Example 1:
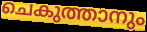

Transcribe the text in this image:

ചെകുത്താനും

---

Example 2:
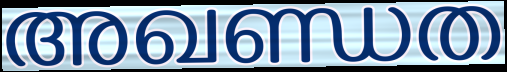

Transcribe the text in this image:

അഖണ്ഡത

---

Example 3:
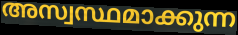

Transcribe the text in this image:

അസ്വസ്ഥമാക്കുന്ന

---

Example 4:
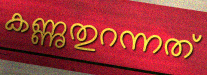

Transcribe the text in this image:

കണ്ണുതുറന്നത്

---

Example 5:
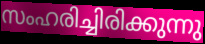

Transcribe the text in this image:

സംഹരിച്ചിരിക്കുന്നു